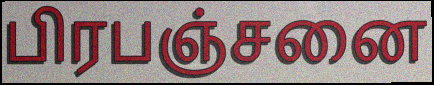
பிரபஞ்சனை